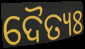
ଦୈତ୍ୟଃ